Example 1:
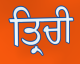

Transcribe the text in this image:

ਤ੍ਰਿਚੀ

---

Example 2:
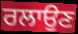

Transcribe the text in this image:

ਰਲਾਉਣ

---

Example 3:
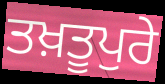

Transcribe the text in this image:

ਤਖ਼ਤੂਪੁਰੇ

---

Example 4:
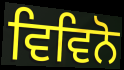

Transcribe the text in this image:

ਵਿਵਿਨੋ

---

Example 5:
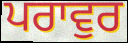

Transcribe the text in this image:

ਪਰਾਵੁਰ